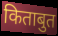
किताबुत